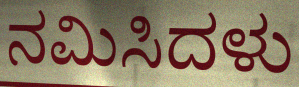
ನಮಿಸಿದಳು